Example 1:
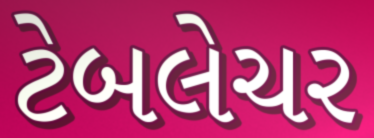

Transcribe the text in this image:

ટેબલેચર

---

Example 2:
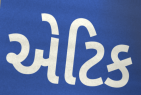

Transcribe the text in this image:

એટિક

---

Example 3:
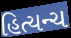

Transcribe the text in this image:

હિત્યન્ચ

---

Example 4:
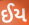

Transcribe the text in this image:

ઈય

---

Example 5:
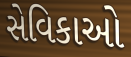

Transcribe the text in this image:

સેવિકાઓ